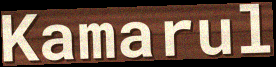
Kamarul